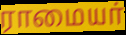
ராமையர்